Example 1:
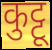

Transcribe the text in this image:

कुट्टू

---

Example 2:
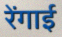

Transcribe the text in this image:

रेंगाई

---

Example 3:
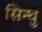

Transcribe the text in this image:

सिन्‍धु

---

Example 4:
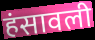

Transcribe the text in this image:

हंसावली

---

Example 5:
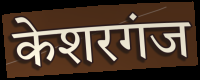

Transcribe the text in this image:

केशरगंज